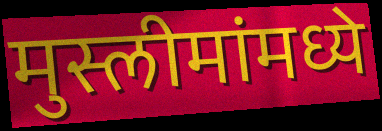
मुस्लीमांमध्ये